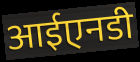
आईएनडी